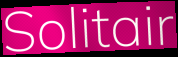
Solitair